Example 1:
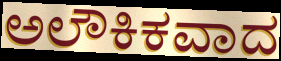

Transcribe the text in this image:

ಅಲೌಕಿಕವಾದ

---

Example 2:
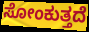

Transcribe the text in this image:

ಸೋಂಕುತ್ತದೆ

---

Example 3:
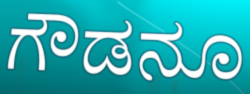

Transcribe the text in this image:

ಗೌಡನೂ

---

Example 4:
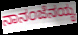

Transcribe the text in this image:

ನಾನಂಜೆನಯ್ಯ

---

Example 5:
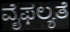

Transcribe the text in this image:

ವೈಫಲ್ಯತೆ